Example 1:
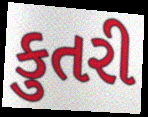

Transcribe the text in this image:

કુતરી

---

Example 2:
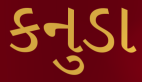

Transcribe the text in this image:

કનુડા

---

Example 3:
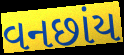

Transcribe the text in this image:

વનછાંય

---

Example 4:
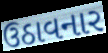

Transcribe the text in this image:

ઉઠાવનાર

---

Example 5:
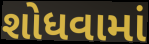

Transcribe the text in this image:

શોધવામાં